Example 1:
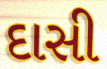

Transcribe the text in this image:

દાસી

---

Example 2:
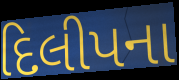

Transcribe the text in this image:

દિલીપના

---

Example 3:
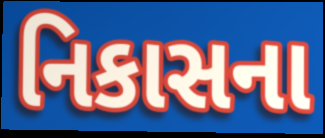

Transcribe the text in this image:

નિકાસના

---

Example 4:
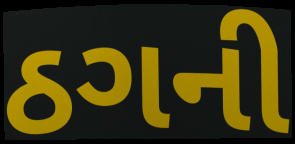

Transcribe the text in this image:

ઠગની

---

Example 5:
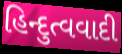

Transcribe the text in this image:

હિન્દુત્વવાદી